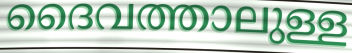
ദൈവത്താലുള്ള